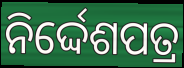
ନିର୍ଦ୍ଦେଶପତ୍ର